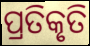
ପ୍ରତିକୃତି